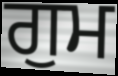
ਗੁਮ